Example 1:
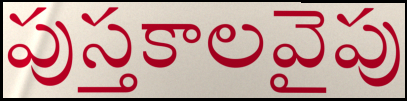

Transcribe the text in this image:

పుస్తకాలవైపు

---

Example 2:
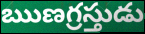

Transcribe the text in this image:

ఋణగ్రస్తుడు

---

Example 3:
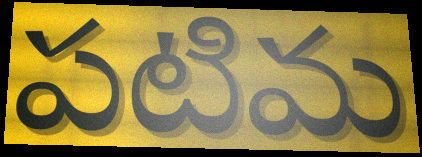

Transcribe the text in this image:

పటిమ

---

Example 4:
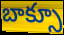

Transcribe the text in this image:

బాక్సూ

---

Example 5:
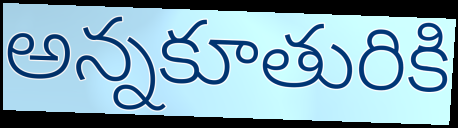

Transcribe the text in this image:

అన్నకూతురికి